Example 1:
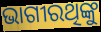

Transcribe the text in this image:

ଭାଗୀରଥିଙ୍କୁ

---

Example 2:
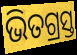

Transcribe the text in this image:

ଭିତଗ୍ରସ୍ତ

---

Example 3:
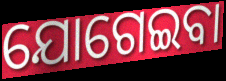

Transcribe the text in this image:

ଯୋଗେଇବା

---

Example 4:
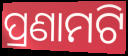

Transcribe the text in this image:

ପ୍ରଣାମଟି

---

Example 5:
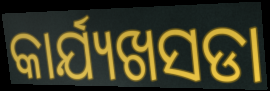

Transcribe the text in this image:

କାର୍ଯ୍ୟଖସଡା